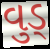
વુડ્